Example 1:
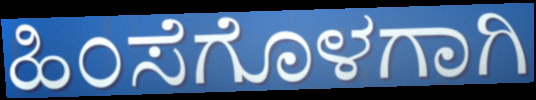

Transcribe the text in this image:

ಹಿಂಸೆಗೊಳಗಾಗಿ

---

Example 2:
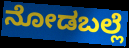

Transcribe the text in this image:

ನೋಡಬಲ್ಲೆ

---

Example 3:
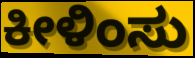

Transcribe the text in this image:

ಕೀಳಿಂಸು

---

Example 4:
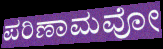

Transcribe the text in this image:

ಪರಿಣಾಮವೋ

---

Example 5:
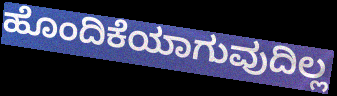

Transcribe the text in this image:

ಹೊಂದಿಕೆಯಾಗುವುದಿಲ್ಲ